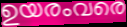
ഉയരംവരെ